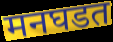
मनघडत